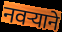
नवऱ्याने